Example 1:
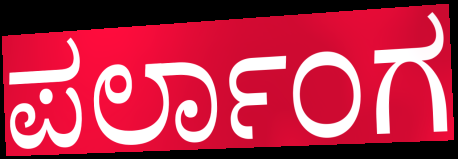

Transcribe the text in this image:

ಪರ್ಲಾಂಗ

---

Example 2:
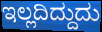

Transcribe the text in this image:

ಇಲ್ಲದಿದ್ದುದು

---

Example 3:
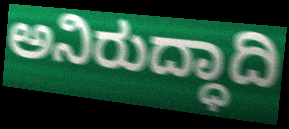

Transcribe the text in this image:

ಅನಿರುದ್ಧಾದಿ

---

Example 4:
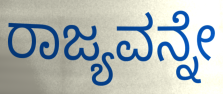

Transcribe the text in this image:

ರಾಜ್ಯವನ್ನೇ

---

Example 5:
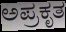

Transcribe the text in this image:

ಅಪ್ರಕೃತ